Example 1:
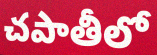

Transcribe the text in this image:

చపాతీలో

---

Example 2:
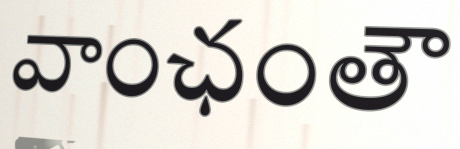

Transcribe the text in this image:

వాంఛంతౌ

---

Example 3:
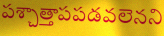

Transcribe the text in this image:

పశ్చాత్తాపపడవలెనని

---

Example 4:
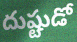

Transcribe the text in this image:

దుష్టుడో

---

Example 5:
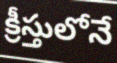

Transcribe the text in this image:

క్రీస్తులోనే